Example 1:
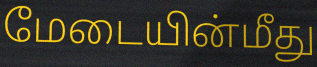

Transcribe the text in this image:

மேடையின்மீது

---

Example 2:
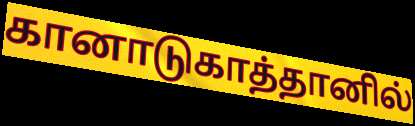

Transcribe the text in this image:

கானாடுகாத்தானில்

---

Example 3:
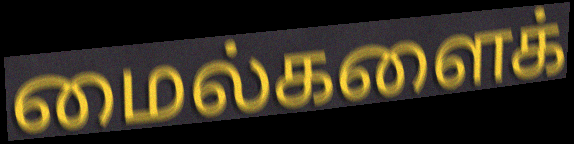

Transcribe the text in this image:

மைல்களைக்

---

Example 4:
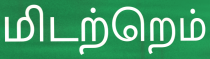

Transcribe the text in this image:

மிடற்றெம்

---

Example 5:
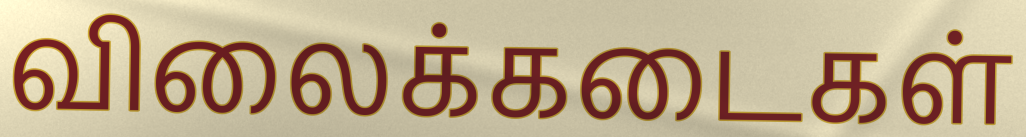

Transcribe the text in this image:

விலைக்கடைகள்